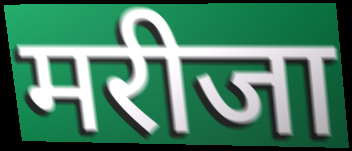
मरीजा